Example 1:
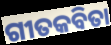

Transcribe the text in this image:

ଗୀତକବିତା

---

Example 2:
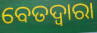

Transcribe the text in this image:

ବେତଦ୍ୱାରା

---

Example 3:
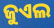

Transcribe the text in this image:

ଜୁଏଲ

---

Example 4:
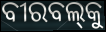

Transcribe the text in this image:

ବୀରବଲ୍‌କୁ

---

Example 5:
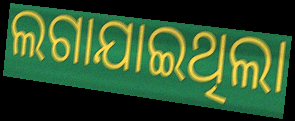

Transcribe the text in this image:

ଲଗାଯାଇଥିଲା